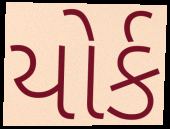
યોર્ક